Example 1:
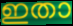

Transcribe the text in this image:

ഇതാ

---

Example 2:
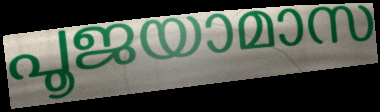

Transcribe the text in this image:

പൂജയാമാസ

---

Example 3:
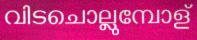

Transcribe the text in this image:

വിടചൊല്ലുമ്പോള്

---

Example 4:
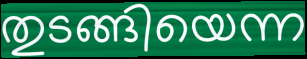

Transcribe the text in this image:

തുടങ്ങിയെന്ന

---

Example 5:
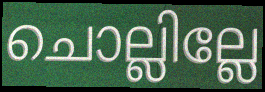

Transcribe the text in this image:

ചൊല്ലില്ലേ